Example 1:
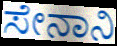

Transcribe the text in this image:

ಸೇನಾನಿ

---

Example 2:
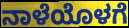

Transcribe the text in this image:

ನಾಳೆಯೊಳಗೆ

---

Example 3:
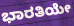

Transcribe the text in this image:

ಭಾರತಿಯೇ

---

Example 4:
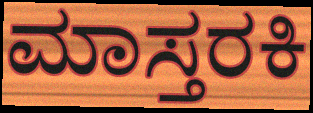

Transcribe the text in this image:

ಮಾಸ್ತರಕಿ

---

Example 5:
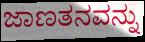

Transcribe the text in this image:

ಜಾಣತನವನ್ನು